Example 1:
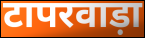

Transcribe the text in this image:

टापरवाड़ा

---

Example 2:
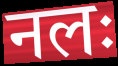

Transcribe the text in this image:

नलः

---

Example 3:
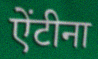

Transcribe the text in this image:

ऐंटीना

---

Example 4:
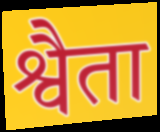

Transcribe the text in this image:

श्वैता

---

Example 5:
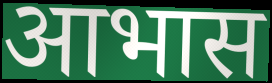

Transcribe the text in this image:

आभास